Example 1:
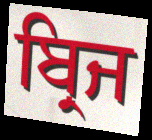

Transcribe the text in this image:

ਬ੍ਰਿਜ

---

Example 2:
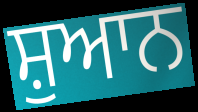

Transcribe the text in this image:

ਸ਼ੁਆਨ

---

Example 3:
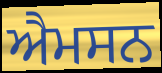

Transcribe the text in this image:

ਐਮਸਨ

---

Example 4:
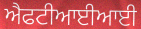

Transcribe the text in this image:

ਐਫਟੀਆਈਆਈ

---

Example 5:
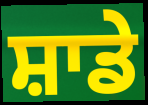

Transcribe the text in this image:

ਸ਼ਾਡੇ